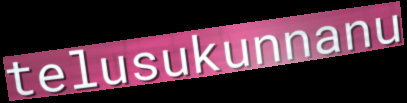
telusukunnanu